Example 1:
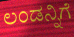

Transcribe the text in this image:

ಲಂಡನ್ನಿಗೆ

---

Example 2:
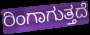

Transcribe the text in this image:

ರಿಂಗಾಗುತ್ತದೆ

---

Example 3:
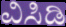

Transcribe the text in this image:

ವಿಸಿಡಿ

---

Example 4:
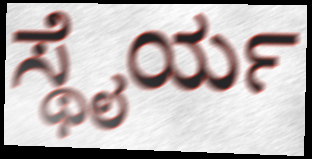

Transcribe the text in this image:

ಸ್ಥೈರ್ಯ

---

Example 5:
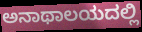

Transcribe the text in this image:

ಅನಾಥಾಲಯದಲ್ಲಿ